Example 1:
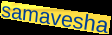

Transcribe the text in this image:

samavesha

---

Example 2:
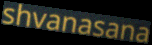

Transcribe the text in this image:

shvanasana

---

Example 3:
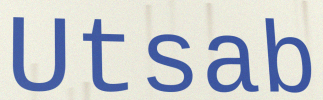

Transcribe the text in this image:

Utsab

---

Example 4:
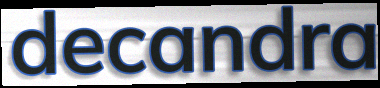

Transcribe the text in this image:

decandra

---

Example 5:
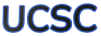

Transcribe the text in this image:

UCSC